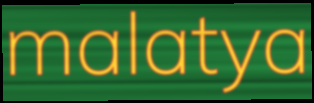
malatya